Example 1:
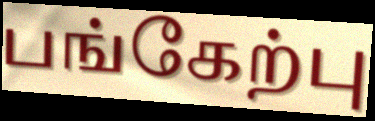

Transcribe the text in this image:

பங்கேற்பு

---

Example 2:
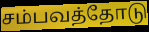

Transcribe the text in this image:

சம்பவத்தோடு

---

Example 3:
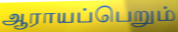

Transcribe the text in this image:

ஆராயப்பெறும்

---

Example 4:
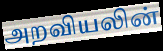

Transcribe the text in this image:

அறவியலின்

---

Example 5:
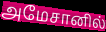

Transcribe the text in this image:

அமேசானில்